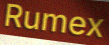
Rumex